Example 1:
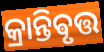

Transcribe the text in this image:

କ୍ରାନ୍ତିଵୃତ୍ତ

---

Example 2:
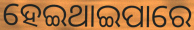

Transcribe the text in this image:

ହେଇଥାଇପାରେ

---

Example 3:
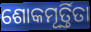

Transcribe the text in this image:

ଶୋକମୂର୍ତ୍ତିତା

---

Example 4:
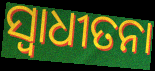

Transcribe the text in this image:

ସ୍ବାଧୀତନା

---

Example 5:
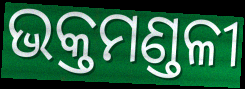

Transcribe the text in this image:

ଭକ୍ତମଣ୍ଡଳୀ